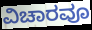
ವಿಚಾರವೂ